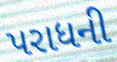
પરાધની